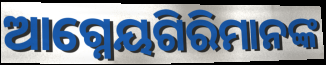
ଆଗ୍ନେୟଗିରିମାନଙ୍କ